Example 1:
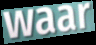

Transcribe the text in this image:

waar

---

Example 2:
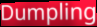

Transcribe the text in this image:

Dumpling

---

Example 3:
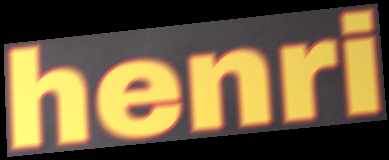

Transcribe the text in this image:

henri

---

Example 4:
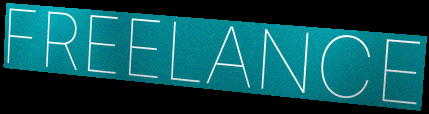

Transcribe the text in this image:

FREELANCE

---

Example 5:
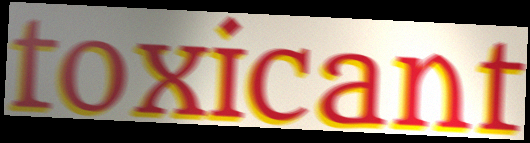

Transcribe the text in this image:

toxicant